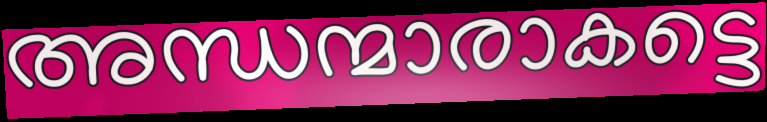
അന്ധന്മാരാകട്ടെ